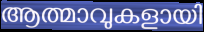
ആത്മാവുകളായി